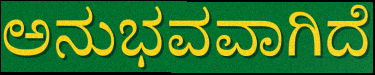
ಅನುಭವವಾಗಿದೆ